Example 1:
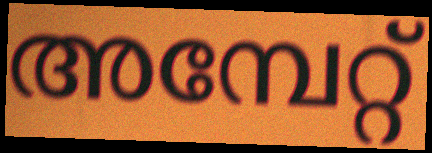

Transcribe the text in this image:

അമ്പേറ്റ്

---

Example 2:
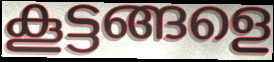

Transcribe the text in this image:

കൂട്ടങ്ങളെ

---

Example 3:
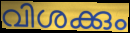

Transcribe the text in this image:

വിശക്കും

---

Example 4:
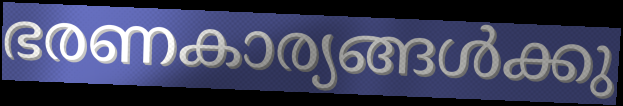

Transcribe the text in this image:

ഭരണകാര്യങ്ങൾക്കു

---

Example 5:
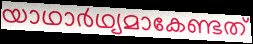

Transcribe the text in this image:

യാഥാർഥ്യമാകേണ്ടത്